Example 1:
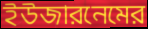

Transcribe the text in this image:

ইউজারনেমের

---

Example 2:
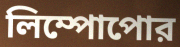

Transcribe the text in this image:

লিম্পোপোর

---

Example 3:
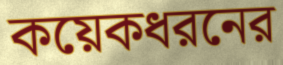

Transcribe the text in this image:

কয়েকধরনের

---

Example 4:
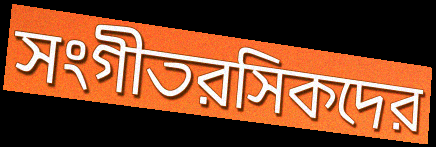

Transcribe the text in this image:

সংগীতরসিকদের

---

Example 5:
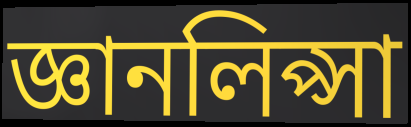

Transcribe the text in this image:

জ্ঞানলিপ্সা